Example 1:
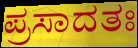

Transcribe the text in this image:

ಪ್ರಸಾದತಃ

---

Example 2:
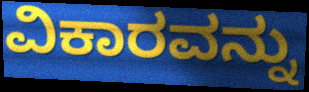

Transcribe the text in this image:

ವಿಕಾರವನ್ನು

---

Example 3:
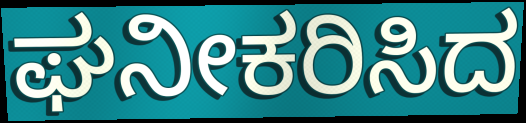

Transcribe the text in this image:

ಘನೀಕರಿಸಿದ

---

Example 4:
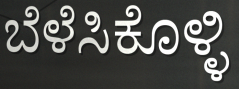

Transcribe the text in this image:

ಬೆಳೆಸಿಕೊಳ್ಳಿ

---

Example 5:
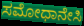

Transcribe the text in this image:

ಸಮೋಧಾನೇಸಿ